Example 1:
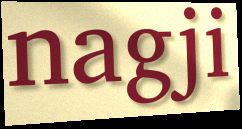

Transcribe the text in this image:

nagji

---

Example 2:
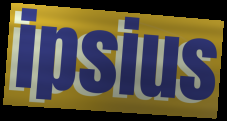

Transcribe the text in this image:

ipsius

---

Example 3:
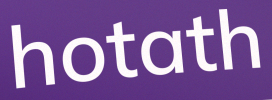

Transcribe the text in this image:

hotath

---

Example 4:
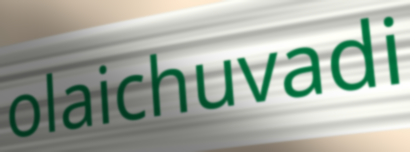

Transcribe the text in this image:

olaichuvadi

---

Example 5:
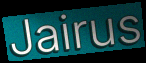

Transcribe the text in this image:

Jairus